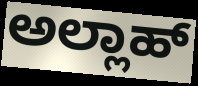
ಅಲ್ಲಾಹ್